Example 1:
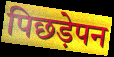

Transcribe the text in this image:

पिछड़ेपन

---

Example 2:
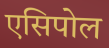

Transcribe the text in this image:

एसिपोल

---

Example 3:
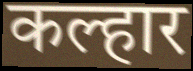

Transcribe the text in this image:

कल्हार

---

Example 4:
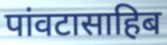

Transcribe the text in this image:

पांवटासाहिब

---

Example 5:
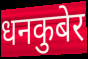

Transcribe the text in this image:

धनकुबेर